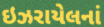
ઇઝરાયેલનાં